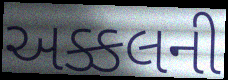
અક્કલની